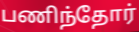
பணிந்தோர்